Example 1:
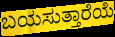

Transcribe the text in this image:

ಬಯಸುತ್ತಾರೆಯೆ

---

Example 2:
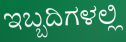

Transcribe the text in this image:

ಇಬ್ಬದಿಗಳಲ್ಲಿ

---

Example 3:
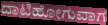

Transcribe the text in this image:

ದಾಟಿಹೋಗುವಾಗ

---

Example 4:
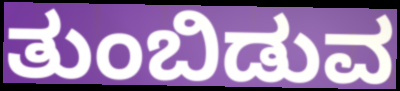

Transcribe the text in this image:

ತುಂಬಿಡುವ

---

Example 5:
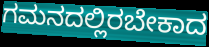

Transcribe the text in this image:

ಗಮನದಲ್ಲಿರಬೇಕಾದ